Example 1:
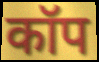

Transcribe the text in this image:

कॉप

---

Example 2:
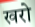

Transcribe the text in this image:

खरो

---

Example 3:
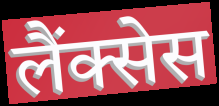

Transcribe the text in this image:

लैंक्‍सेस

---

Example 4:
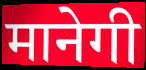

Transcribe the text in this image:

मानेगी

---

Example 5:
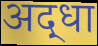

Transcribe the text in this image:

अद्धा